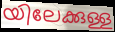
യിലേക്കുള്ള